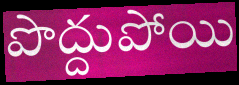
పొద్దుపోయి